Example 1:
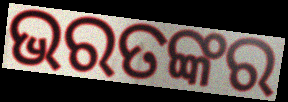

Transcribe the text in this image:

ଭରତଙ୍କର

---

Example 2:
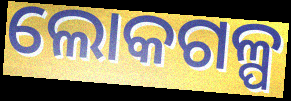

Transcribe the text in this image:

ଲୋକଗଳ୍ପ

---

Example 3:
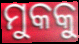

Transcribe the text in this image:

ମୁକକୁ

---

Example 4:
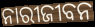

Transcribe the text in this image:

ନାରୀଜୀବନ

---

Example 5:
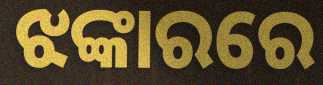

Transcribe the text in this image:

ଝଙ୍କାରରେ